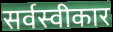
सर्वस्वीकार